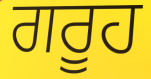
ਗਰੂਹ